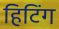
हिटिंग